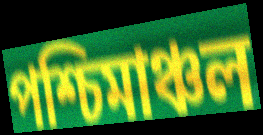
পশ্চিমাঞ্চল